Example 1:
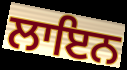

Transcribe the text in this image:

ਲਾਇਨ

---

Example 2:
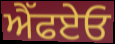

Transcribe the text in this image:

ਐੱਫਏਓ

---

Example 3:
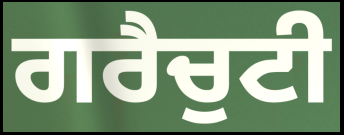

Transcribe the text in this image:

ਗਰੈਚੁਟੀ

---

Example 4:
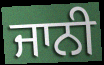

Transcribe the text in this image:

ਜਾਨੀ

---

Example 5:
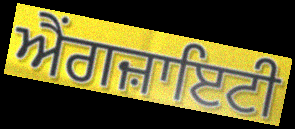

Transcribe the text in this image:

ਐਂਗਜ਼ਾਇਟੀ